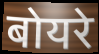
बोयरे